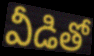
వీడితో